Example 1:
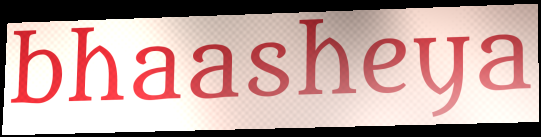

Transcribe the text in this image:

bhaasheya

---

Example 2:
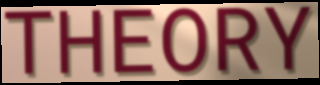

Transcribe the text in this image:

THEORY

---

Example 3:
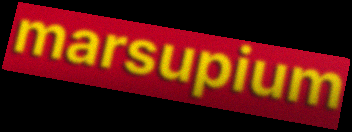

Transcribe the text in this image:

marsupium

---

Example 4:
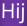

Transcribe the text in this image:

Hij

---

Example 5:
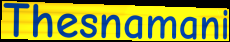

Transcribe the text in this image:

Thesnamani